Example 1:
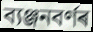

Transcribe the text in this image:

ব্যঞ্জনবৰ্ণৰ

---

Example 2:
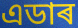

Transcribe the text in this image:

এডাৰ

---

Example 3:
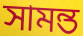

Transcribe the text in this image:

সামন্ত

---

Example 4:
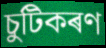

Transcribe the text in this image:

চুটিকৰণ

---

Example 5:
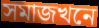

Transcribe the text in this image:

সমাজখনে